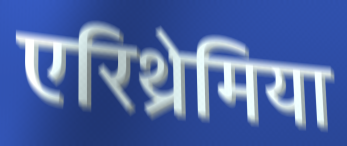
एरिथ्रेमिया